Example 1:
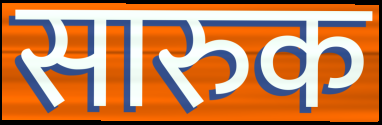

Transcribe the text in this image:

सारुक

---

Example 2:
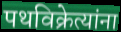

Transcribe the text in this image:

पथविक्रेत्यांना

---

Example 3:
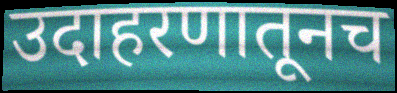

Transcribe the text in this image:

उदाहरणातूनच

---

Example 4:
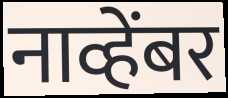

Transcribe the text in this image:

नाव्हेंबर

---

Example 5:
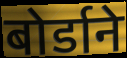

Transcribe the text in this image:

बोर्डाने